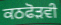
ਕਠਫੋੜਵੀ